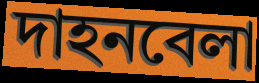
দাহনবেলা